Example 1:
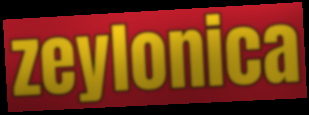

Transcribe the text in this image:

zeylonica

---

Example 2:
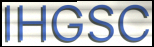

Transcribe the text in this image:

IHGSC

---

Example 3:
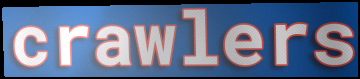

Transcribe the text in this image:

crawlers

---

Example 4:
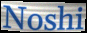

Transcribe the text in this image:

Noshi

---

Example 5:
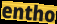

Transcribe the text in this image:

entho